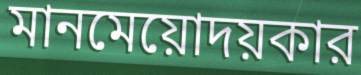
মানমেয়োদয়কার